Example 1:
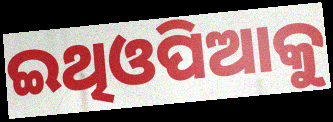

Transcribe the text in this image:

ଇଥିଓପିଆକୁ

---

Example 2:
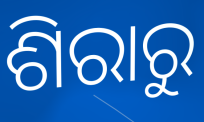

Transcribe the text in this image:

ଶିରାରୁ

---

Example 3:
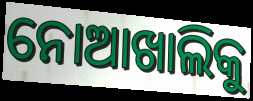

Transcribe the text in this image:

ନୋଆଖାଲିକୁ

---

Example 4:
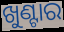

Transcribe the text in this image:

ଖୁଣ୍ଟାର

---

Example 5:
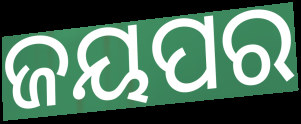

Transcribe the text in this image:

ଜୟପର